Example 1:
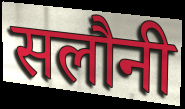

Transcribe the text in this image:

सलौनी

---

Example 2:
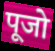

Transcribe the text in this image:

पूजो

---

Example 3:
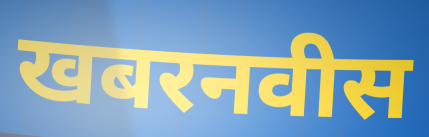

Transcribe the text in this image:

खबरनवीस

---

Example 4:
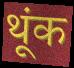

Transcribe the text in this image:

थूंक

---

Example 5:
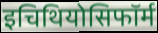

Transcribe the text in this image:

इचिथियोसिफॉर्म